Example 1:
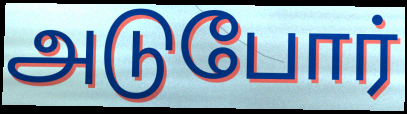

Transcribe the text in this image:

அடுபோர்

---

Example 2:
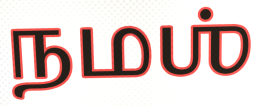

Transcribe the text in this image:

நமஶ்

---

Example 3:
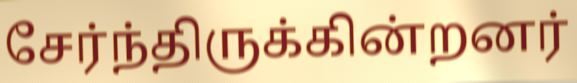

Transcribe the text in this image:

சேர்ந்திருக்கின்றனர்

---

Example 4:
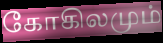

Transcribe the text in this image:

கோகிலமும்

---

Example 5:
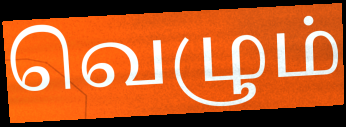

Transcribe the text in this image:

வெழும்